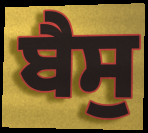
ਬੈਸੁ